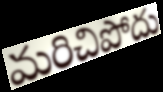
మరిచిపోదు